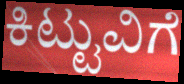
ಕಿಟ್ಟುವಿಗೆ